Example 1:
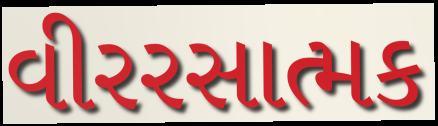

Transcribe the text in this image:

વીરરસાત્મક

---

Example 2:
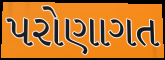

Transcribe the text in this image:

પરોણાગત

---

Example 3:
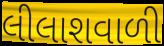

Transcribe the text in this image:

લીલાશવાળી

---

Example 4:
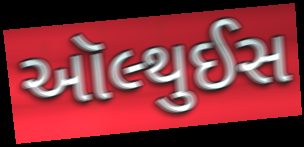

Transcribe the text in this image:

ઑલ્થુઈસ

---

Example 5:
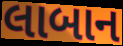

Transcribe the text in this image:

લાબાન